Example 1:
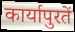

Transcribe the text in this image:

कार्यापुरतें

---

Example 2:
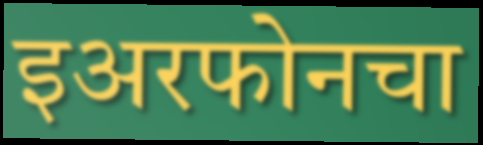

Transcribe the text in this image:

इअरफोनचा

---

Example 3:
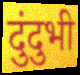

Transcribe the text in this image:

दुंदुभी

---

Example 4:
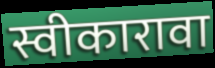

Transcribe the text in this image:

स्वीकारावा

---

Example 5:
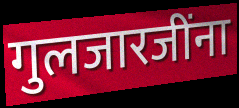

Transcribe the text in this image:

गुलजारजींना